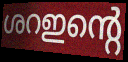
ശറഇന്റെ